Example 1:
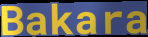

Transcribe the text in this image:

Bakara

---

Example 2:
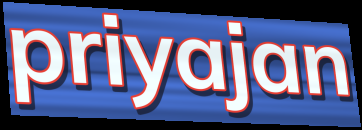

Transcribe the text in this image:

priyajan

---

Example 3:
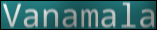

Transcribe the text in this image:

Vanamala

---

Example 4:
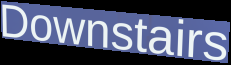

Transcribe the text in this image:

Downstairs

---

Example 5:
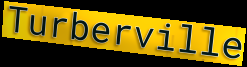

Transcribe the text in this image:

Turberville